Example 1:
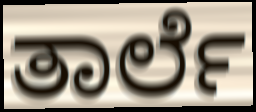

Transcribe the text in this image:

ತಾರ್ಲೆ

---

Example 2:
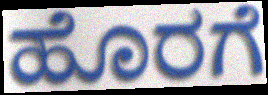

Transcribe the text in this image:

ಹೊರಗೆ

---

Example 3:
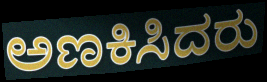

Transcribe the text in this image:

ಅಣಕಿಸಿದರು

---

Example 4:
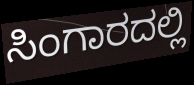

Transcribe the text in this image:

ಸಿಂಗಾರದಲ್ಲಿ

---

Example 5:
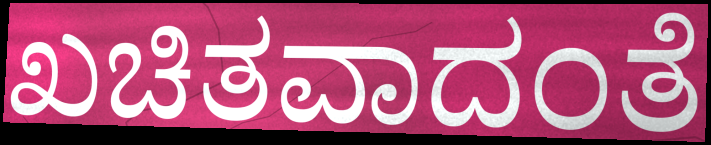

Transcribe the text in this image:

ಖಚಿತವಾದಂತೆ